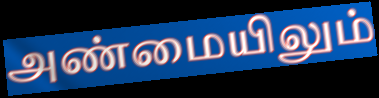
அண்மையிலும்